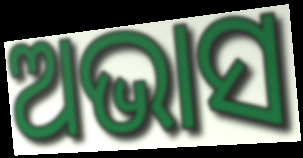
ଅଭାସ